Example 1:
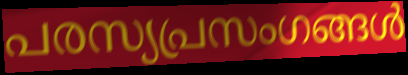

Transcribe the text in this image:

പരസ്യപ്രസംഗങ്ങൾ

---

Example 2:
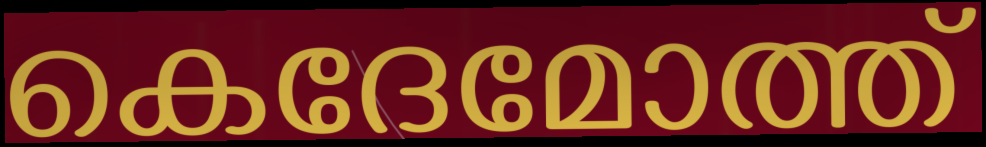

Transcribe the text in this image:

കെദേമോത്ത്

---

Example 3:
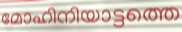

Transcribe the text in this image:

മോഹിനിയാട്ടത്തെ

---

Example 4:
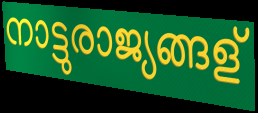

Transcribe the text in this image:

നാട്ടുരാജ്യങ്ങള്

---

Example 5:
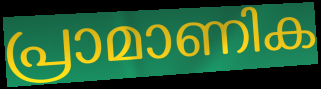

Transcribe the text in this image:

പ്രാമാണിക